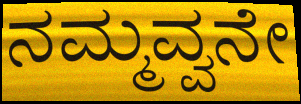
ನಮ್ಮವ್ವನೇ